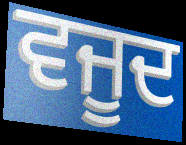
ਵਜੂਦ